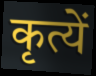
कृत्यें